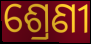
ଶ୍ରେଣୀ